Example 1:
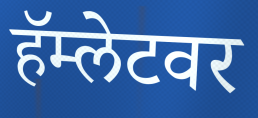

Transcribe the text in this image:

हॅम्लेटवर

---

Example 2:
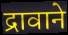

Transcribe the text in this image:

द्रावाने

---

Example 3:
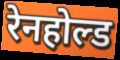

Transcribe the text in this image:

रेनहोल्ड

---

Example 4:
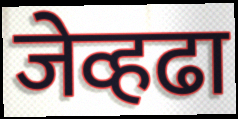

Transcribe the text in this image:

जेव्हढा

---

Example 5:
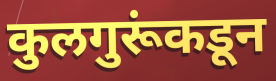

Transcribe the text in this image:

कुलगुरूंकडून